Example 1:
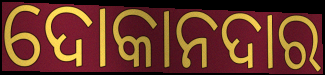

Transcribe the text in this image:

ଦୋକାନଦାର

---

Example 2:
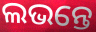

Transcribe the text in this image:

ଲଭନ୍ତେ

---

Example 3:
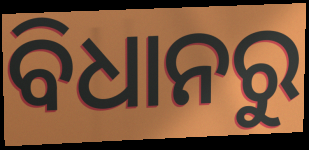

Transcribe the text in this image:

ବିଧାନରୁ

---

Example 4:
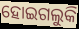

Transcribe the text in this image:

ହୋଇଗଲୁକି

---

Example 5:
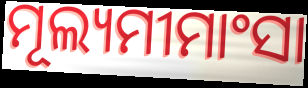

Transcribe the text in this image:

ମୂଲ୍ୟମୀମାଂସା